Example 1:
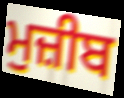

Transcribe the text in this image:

ਮੁਜ਼ੀਬ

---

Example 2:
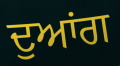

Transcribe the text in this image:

ਦੁਆਂਗ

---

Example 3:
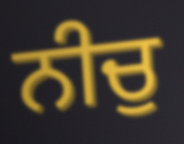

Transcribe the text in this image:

ਨੀਚੁ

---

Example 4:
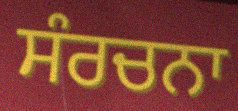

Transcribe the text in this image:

ਸੰਰਚਨਾ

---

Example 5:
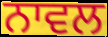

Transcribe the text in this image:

ਨਾਵਲ